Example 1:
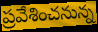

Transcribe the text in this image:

ప్రవేశించనున్న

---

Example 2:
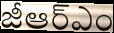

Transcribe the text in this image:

జీఆర్ఎం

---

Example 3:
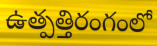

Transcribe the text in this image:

ఉత్పత్తిరంగంలో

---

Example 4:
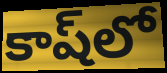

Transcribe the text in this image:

కాష్‌లో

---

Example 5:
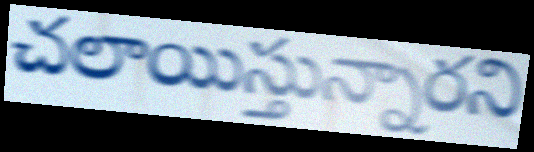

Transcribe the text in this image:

చలాయిస్తున్నారని